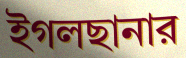
ইগলছানার